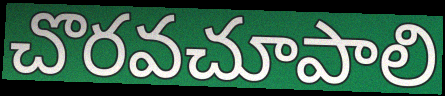
చొరవచూపాలి